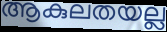
ആകുലതയല്ല